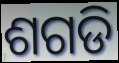
ଶଗଡି